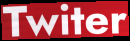
Twiter